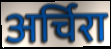
अर्चिरा